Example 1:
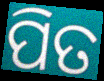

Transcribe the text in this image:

ପିତ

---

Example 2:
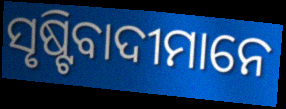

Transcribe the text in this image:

ସୃଷ୍ଟିବାଦୀମାନେ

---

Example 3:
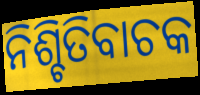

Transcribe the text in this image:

ନିଶ୍ଚିତିବାଚକ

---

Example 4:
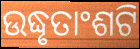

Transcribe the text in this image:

ଉଦ୍ଧୃତାଂଶଟି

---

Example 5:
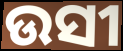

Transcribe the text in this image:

ଉସୀ